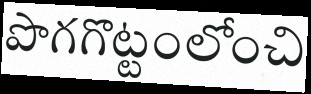
పొగగొట్టంలోంచి